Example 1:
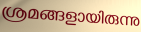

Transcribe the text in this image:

ശ്രമങ്ങളായിരുന്നു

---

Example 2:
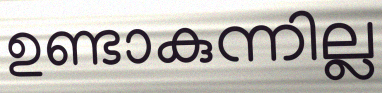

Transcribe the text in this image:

ഉണ്ടാകുന്നില്ല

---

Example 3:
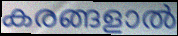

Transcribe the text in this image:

കരങ്ങളാൽ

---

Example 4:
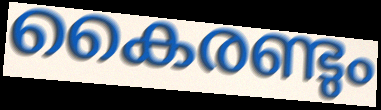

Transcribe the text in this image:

കൈരണ്ടും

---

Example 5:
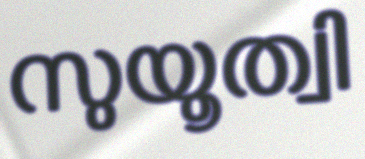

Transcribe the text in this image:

സുയൂത്വി